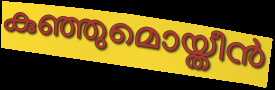
കുഞ്ഞുമൊയ്തീൻ